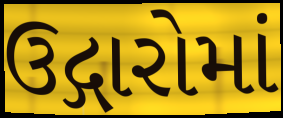
ઉદ્ગારોમાં